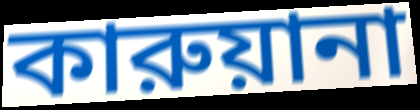
কারুয়ানা